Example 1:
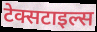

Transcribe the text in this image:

टेक्सटाइल्स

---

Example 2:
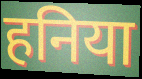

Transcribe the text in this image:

हनिया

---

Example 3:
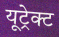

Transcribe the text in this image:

यूट्रेक्ट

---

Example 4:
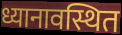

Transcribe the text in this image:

ध्यानावस्थित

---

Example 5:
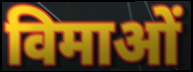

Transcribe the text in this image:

विमाओं